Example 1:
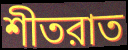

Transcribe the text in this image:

শীতরাত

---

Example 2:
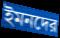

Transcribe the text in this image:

ইমনদের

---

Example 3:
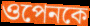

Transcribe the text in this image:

ওপেনকে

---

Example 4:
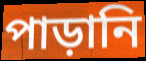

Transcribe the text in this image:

পাড়ানি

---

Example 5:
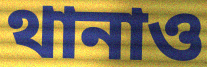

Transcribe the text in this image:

থানাও